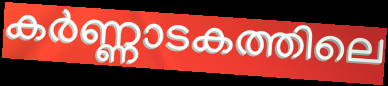
കർണ്ണാടകത്തിലെ